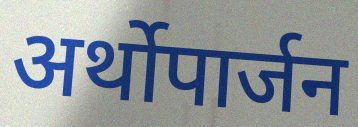
अर्थोपार्जन